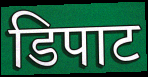
डिपाट